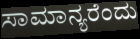
ಸಾಮಾನ್ಯರೆಂದು